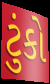
ટુંકો